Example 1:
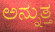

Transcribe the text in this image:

ಅನ್ನುತ್ತ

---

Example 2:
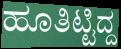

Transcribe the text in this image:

ಹೂತಿಟ್ಟಿದ್ದ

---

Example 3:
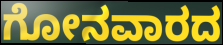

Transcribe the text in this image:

ಗೋನವಾರದ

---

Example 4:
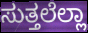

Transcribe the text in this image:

ಸುತ್ತಲೆಲ್ಲಾ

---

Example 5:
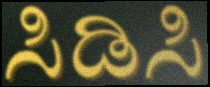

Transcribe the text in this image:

ಸಿಡಿಸಿ